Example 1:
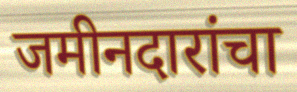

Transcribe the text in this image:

जमीनदारांचा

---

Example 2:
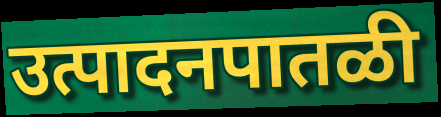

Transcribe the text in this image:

उत्पादनपातळी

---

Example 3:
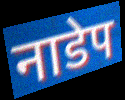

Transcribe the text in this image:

नाडेप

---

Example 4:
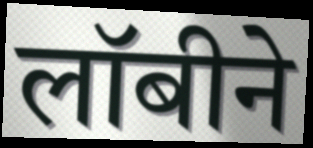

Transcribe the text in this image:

लॉबीने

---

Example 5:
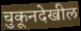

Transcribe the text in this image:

चुकूनदेखील